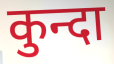
कुन्दा